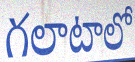
గలాటాలో